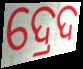
ଦ୍ରେଦ